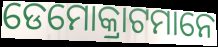
ଡେମୋକ୍ରାଟମାନେ